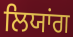
ਲਿਯਾਂਗ